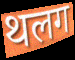
थलग